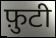
फ़ुटी